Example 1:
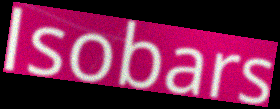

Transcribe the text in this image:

Isobars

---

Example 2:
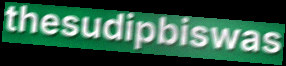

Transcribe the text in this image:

thesudipbiswas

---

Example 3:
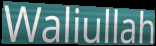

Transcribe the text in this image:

Waliullah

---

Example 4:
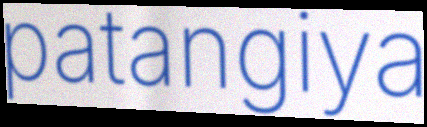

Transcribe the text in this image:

patangiya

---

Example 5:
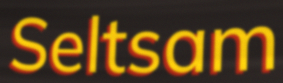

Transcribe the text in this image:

Seltsam